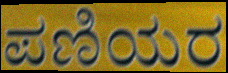
ಪಣಿಯರ